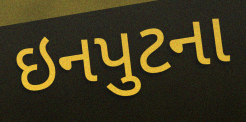
ઇનપુટના